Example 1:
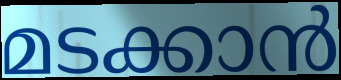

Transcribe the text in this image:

മടക്കാൻ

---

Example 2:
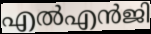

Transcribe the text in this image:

എൽഎൻജി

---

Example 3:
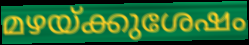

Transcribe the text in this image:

മഴയ്ക്കുശേഷം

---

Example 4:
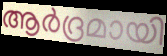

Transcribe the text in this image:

ആർദ്രമായി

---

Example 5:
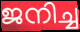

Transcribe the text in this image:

ജനിച്ച